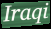
Iraqi